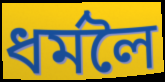
ধৰ্মলৈ